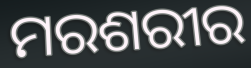
ମରଶରୀର